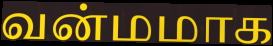
வன்மமாக